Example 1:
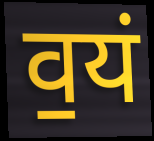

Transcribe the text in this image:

व॒यं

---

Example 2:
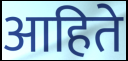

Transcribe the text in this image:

आहिते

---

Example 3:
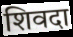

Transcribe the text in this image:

शिवदा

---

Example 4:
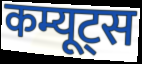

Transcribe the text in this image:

कम्यूट्स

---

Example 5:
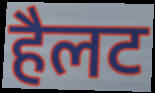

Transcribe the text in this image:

हैलट